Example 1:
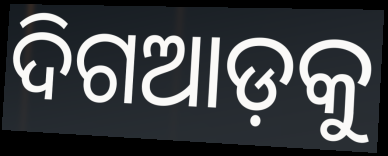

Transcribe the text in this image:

ଦିଗଆଡ଼କୁ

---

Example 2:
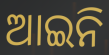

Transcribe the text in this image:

ଆଇନି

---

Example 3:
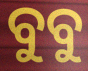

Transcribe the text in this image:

ବୁବୁ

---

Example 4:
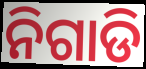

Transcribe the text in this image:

ନିଗାଡି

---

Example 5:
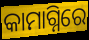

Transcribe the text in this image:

କାମାଗ୍ନିରେ